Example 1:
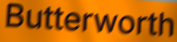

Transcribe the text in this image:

Butterworth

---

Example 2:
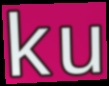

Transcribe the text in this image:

ku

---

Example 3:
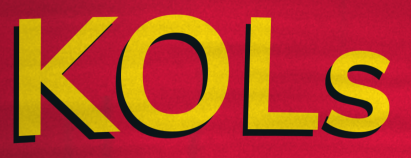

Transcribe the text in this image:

KOLs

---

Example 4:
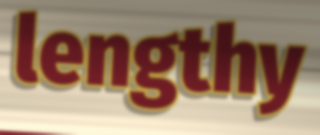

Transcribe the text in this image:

lengthy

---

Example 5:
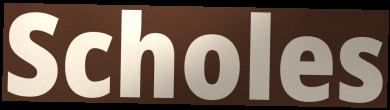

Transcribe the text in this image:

Scholes